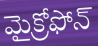
మైక్రోఫోన్